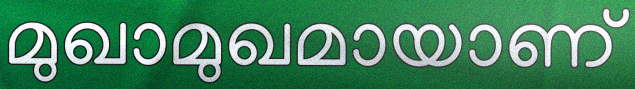
മുഖാമുഖമായാണ്